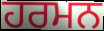
ਹਰਮਨ